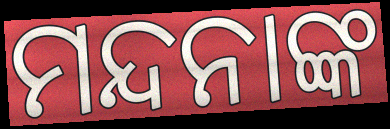
ମନ୍ଦନାଙ୍କ